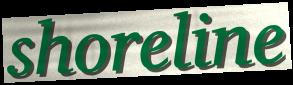
shoreline